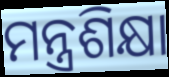
ମନ୍ତ୍ରଶିକ୍ଷା